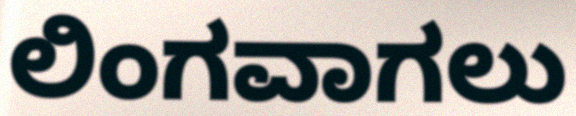
ಲಿಂಗವಾಗಲು